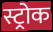
स्ट्रोक